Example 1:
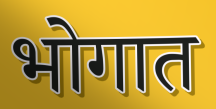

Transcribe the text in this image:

भोगात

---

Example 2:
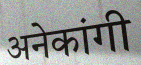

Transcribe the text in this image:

अनेकांगी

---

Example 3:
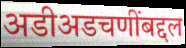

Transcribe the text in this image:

अडीअडचणींबद्दल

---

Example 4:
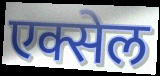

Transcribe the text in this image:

एक्सेल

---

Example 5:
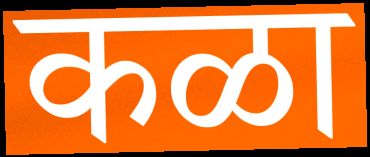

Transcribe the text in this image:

कळा